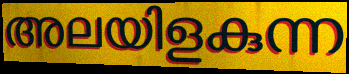
അലയിളകുന്ന